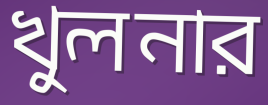
খুলনার